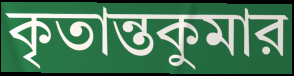
কৃতান্তকুমার